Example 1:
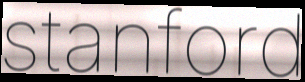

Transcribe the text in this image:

stanford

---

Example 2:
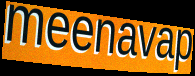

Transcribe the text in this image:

meenavap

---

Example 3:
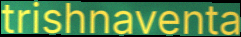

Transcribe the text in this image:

trishnaventa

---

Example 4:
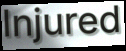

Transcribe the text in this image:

Injured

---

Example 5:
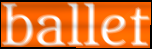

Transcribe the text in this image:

ballet